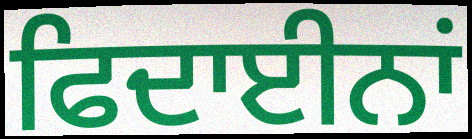
ਫਿਦਾਈਨਾਂ